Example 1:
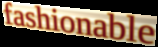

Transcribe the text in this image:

fashionable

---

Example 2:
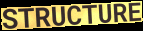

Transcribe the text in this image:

STRUCTURE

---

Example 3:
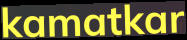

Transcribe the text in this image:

kamatkar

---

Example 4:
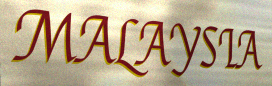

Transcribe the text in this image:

MALAYSIA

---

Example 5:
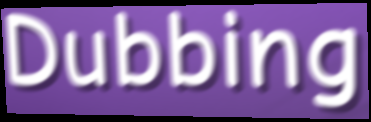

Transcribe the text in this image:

Dubbing